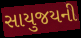
સાયુજયની